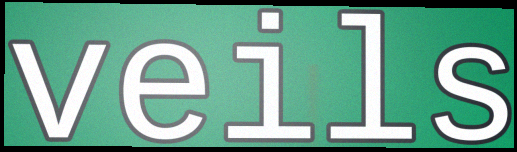
veils